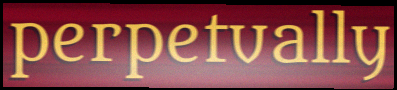
perpetually